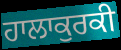
ਹਾਲਾਕੁਰਕੀ